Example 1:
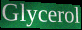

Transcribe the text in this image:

Glycerol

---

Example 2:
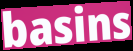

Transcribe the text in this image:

basins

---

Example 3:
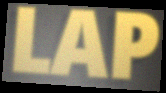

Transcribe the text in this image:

LAP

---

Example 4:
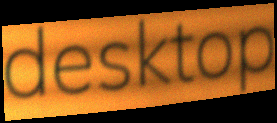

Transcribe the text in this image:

desktop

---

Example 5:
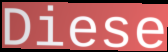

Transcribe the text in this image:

Diese